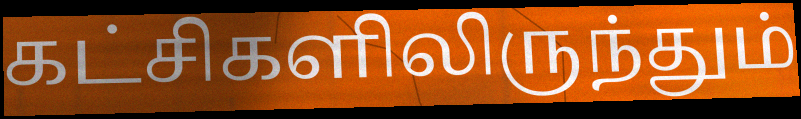
கட்சிகளிலிருந்தும்